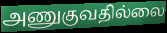
அணுகுவதில்லை